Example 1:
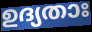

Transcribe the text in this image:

ഉദ്യതാഃ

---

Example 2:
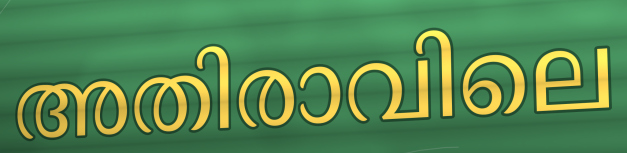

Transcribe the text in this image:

അതിരാവിലെ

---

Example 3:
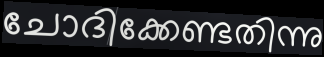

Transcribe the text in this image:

ചോദിക്കേണ്ടതിന്നു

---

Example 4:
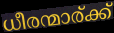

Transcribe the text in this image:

ധീരന്മാര്ക്ക്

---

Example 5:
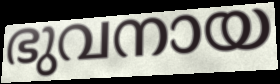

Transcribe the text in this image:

ഭുവനായ